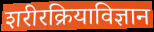
शरीरक्रियाविज्ञान